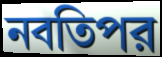
নবতিপর